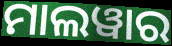
ମାଲୱାର